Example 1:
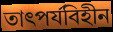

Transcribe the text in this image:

তাৎপর্যবিহীন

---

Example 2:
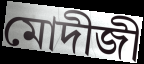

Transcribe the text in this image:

মোদীজী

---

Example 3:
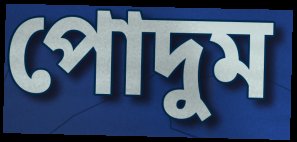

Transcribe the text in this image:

পোদুম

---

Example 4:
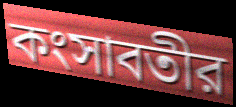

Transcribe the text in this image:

কংসাবতীর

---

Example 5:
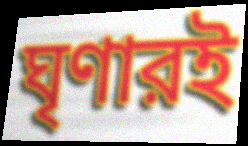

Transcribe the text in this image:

ঘৃণারই